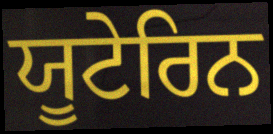
ਯੂਟੇਰਿਨ